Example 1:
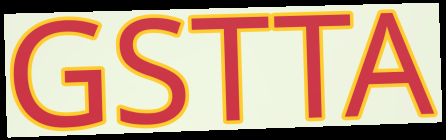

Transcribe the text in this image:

GSTTA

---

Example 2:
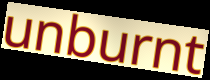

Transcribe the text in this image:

unburnt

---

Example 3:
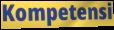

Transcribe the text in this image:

Kompetensi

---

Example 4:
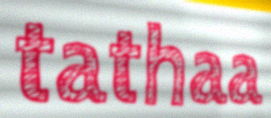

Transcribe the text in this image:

tathaa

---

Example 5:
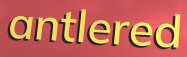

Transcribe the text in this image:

antlered